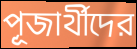
পূজার্থীদের